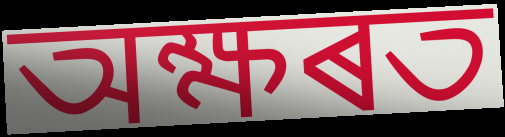
অক্ষৰত